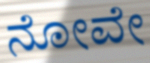
ನೋವೇ